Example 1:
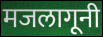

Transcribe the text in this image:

मजलागूनी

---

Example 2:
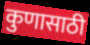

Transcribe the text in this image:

कुणासाठी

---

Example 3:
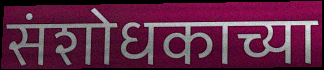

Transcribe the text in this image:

संशोधकाच्या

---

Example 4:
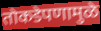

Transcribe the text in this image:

तोकडेपणामुळे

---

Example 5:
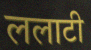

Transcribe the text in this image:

ललाटी